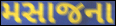
મસાજના